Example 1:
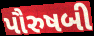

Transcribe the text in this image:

પૌરુષબી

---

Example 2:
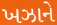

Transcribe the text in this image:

ખઝાને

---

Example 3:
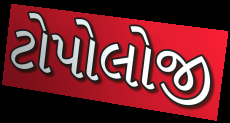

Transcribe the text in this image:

ટોપોલોજી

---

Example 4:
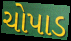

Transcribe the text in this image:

ચોપાડ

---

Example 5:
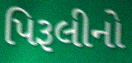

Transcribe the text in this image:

પિરૂલીનો